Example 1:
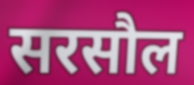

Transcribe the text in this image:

सरसौल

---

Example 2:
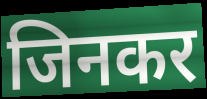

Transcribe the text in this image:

जिनकर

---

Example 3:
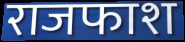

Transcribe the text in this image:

राजफाश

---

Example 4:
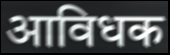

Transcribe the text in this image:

आविधक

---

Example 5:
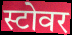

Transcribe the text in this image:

स्टोवर